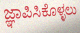
ಜ್ಞಾಪಿಸಿಕೊಳ್ಳಲು